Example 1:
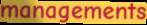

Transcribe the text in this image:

managements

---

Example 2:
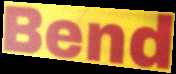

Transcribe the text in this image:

Bend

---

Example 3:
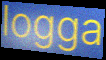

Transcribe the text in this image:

logga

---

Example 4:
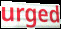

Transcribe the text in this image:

urged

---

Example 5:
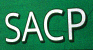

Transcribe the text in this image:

SACP